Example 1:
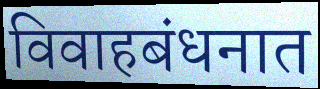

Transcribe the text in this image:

विवाहबंधनात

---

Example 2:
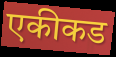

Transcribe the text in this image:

एकीकड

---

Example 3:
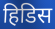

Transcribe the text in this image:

हिडिस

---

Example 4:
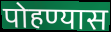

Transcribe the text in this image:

पोहण्यास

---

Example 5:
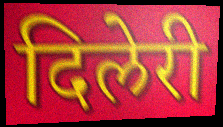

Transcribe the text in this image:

दिलेरी